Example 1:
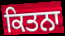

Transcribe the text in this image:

ਕਿਤਨਾ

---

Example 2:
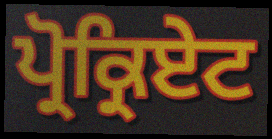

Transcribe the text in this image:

ਪ੍ਰੋਕ੍ਰਿਏਟ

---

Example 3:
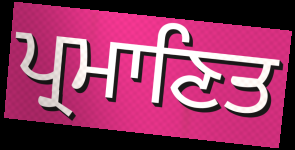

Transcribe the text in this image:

ਪ੍ਰਮਾਣਿਤ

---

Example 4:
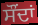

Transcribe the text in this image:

ਸੌਂਦਾਂ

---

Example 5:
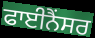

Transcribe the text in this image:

ਫਾਈਨੈਂਸਰ